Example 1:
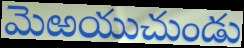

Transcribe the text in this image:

మెఱయుచుండు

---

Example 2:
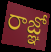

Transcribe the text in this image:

రాజ్ఞో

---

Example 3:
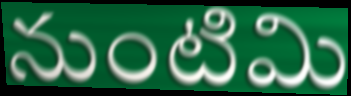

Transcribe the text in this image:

నుంటిమి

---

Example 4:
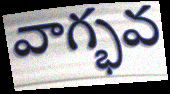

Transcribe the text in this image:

వాగ్భవ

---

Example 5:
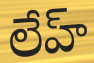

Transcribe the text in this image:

లేహ్